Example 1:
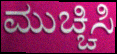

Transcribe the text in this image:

ಮುಚ್ಚಿಸಿ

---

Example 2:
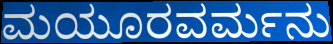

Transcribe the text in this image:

ಮಯೂರವರ್ಮನು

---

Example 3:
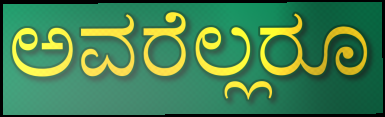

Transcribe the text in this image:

ಅವರೆಲ್ಲರೂ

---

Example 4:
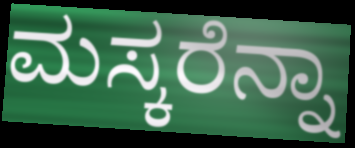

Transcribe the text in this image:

ಮಸ್ಕರೆನ್ನಾ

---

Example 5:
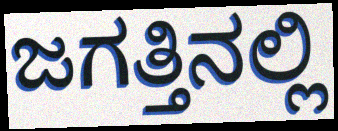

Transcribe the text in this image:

ಜಗತ್ತಿನಲ್ಲಿ